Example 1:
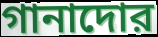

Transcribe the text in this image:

গানাদোর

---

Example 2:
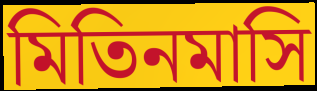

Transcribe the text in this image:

মিতিনমাসি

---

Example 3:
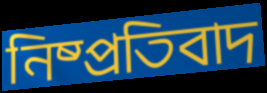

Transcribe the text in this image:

নিষ্প্রতিবাদ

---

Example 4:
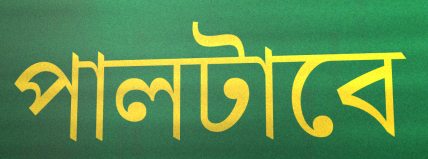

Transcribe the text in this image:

পালটাবে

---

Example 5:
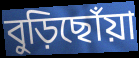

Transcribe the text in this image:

বুড়িছোঁয়া